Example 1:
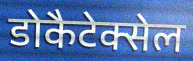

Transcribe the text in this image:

डोकैटेक्सेल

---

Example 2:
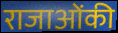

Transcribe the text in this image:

राजाओंकी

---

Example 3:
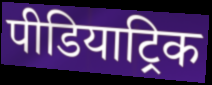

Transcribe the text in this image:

पीडियाट्रिक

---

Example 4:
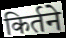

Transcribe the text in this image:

किर्तने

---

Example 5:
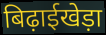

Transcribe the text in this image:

बिढ़ाईखेड़ा